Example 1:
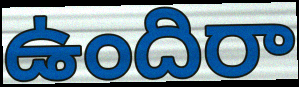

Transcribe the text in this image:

ఉందిరా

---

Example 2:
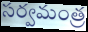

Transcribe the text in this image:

సర్వమంత్ర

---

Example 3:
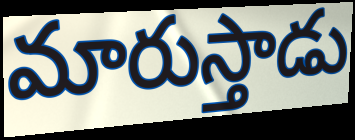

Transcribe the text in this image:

మారుస్తాడు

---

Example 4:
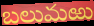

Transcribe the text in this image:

బలుమఱు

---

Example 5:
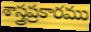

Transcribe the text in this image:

శాస్త్రప్రకారము